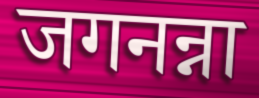
जगनन्ना